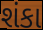
શંકા